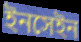
ইনসেইন